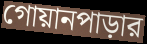
গোয়ানপাড়ার